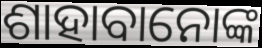
ଶାହାବାନୋଙ୍କ